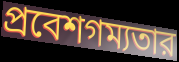
প্রবেশগম্যতার